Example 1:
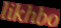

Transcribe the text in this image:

likhbo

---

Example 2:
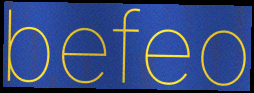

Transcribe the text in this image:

befeo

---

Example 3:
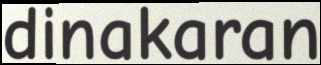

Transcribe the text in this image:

dinakaran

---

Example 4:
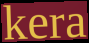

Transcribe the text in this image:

kera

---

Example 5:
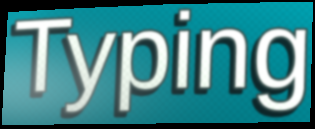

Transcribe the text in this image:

Typing